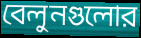
বেলুনগুলোর